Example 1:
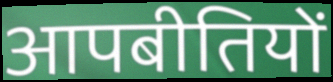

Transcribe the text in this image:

आपबीतियों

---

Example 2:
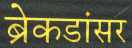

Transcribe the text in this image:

ब्रेकडांसर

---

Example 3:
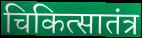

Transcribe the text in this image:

चिकित्सातंत्र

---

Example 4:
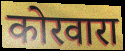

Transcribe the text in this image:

कोरवारा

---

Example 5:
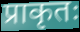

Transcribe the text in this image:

प्राकृतः